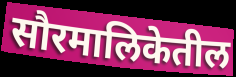
सौरमालिकेतील